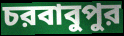
চরবাবুপুর